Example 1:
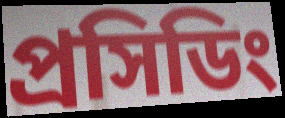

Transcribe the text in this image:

প্রসিডিং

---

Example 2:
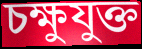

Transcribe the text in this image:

চক্ষুযুক্ত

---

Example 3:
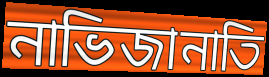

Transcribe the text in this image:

নাভিজানাতি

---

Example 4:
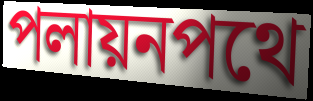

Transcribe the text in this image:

পলায়নপথে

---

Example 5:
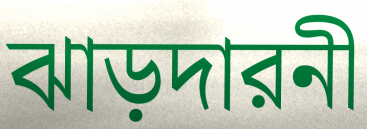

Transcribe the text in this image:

ঝাড়দারনী